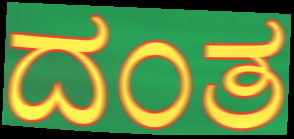
ದಂತ